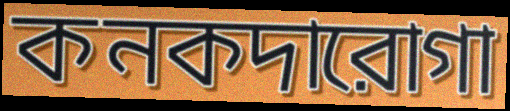
কনকদারোগা